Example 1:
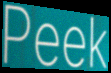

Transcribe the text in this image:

Peek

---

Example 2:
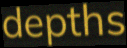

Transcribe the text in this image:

depths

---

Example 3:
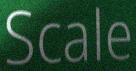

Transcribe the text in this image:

Scale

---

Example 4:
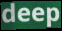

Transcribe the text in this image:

deep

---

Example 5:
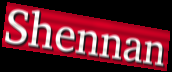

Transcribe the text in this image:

Shennan